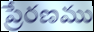
ప్రేరణము